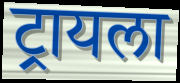
ट्रायला